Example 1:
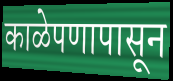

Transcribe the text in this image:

काळेपणापासून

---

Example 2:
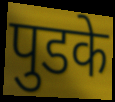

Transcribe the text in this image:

पुडके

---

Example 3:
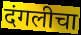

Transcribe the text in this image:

दंगलीचा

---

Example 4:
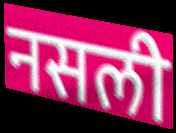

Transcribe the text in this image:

नसली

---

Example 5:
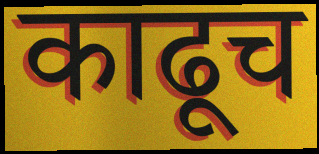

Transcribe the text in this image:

काढूच